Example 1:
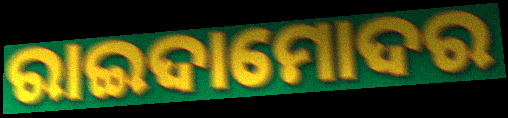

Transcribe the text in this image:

ରାଇଦାମୋଦର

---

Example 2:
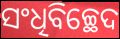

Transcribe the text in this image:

ସଂଧିବିଚ୍ଛେଦ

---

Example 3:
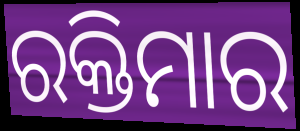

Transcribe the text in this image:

ରକ୍ତିମାର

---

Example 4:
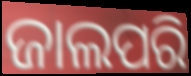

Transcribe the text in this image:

ଜାଲପରି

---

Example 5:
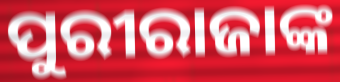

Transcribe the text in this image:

ପୁରୀରାଜାଙ୍କ